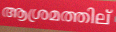
ആശ്രമത്തില്